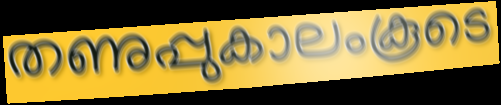
തണുപ്പുകാലംകൂടെ